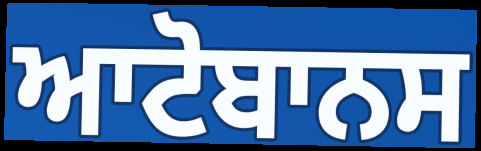
ਆਟੋਬਾਨਸ